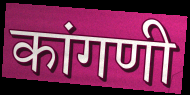
कांगणी